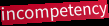
incompetency